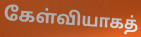
கேள்வியாகத்